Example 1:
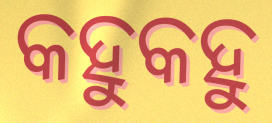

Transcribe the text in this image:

କହୁକହୁ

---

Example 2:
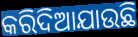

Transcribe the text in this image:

କରିଦିଆଯାଉଛି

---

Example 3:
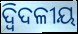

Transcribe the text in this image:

ଦ୍ବିଦଳୀୟ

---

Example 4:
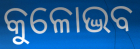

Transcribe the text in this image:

କୁଳୋଦ୍ଭବ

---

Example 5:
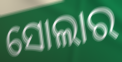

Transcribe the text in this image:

ସୋଲାର